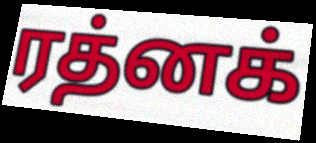
ரத்னக்